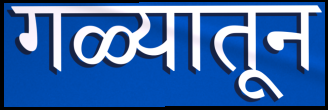
गळ्यातून